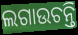
ଲଗାଉଚନ୍ତି